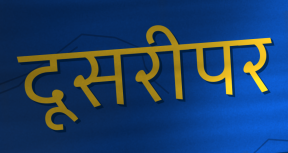
दूसरीपर